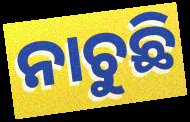
ନାଚୁଛି